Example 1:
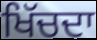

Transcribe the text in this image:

ਖਿੱਚਦਾ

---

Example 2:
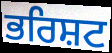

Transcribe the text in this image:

ਭਰਿਸ਼ਟ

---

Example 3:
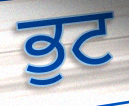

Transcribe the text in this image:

ਭੁਟ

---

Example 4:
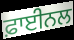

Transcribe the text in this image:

ਫ਼ਾਈਨਲ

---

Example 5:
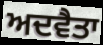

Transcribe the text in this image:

ਅਦਵੈਤਾ